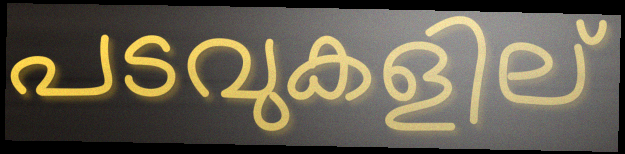
പടവുകളില്